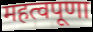
महत्वपूणा